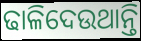
ଢାଳିଦେଉଥାନ୍ତି